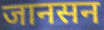
जानसन